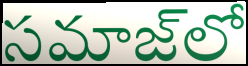
సమాజ్‌లో